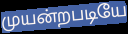
முயன்றபடியே